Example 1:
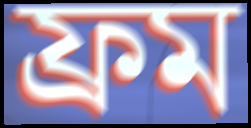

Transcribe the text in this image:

ফ্রম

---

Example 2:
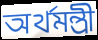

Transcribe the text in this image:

অর্থমন্ত্রী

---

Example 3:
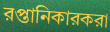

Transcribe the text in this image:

রপ্তানিকারকরা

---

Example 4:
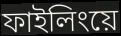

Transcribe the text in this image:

ফাইলিংয়ে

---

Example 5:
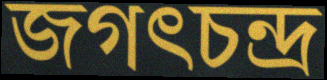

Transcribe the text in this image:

জগৎচন্দ্র